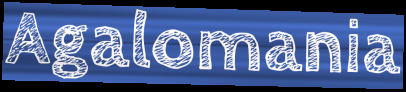
Agalomania